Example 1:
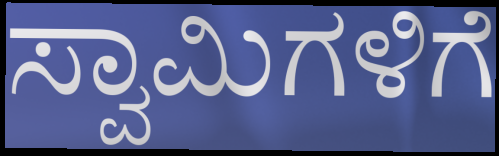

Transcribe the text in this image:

ಸ್ವಾಮಿಗಳಿಗೆ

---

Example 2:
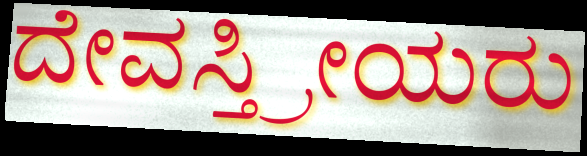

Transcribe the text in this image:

ದೇವಸ್ತ್ರೀಯರು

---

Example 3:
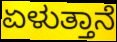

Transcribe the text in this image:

ಏಳುತ್ತಾನೆ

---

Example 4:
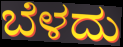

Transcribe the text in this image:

ಬೆಳದು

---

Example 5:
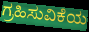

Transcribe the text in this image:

ಗ್ರಹಿಸುವಿಕೆಯ